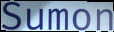
Sumon